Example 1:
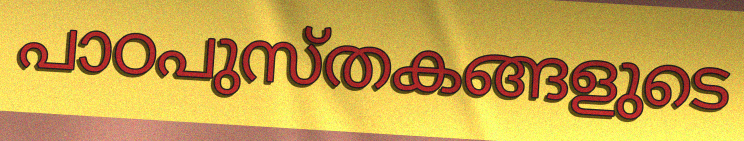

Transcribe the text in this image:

പാഠപുസ്തകങ്ങളുടെ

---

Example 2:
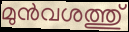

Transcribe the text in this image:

മുൻവശത്തു്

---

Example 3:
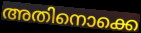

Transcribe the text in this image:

അതിനൊക്കെ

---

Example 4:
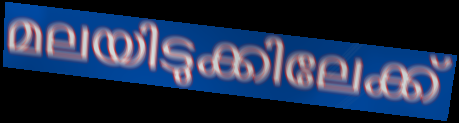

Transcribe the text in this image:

മലയിടുക്കിലേക്ക്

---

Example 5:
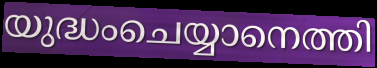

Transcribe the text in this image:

യുദ്ധംചെയ്യാനെത്തി